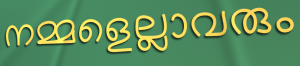
നമ്മളെല്ലാവരും